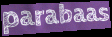
parabaas